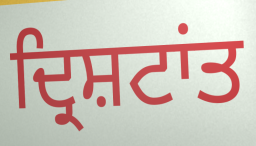
ਦ੍ਰਿਸ਼ਟਾਂਤ